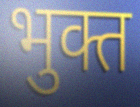
भुक्त